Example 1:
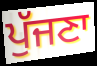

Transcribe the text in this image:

ਪੁੱਜਣਾ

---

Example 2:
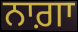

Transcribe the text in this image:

ਨਾਗ਼ਾ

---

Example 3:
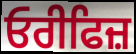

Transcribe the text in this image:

ਓਰੀਫਿਜ਼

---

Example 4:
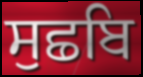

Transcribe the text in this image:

ਸੁਛਬਿ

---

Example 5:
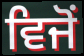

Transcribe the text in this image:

ਵਿਜੋਂ